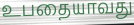
உபதையாவது